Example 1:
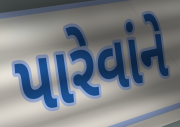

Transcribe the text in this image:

પારેવાંને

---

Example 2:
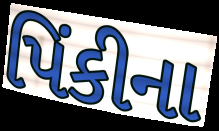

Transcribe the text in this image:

પિંકીના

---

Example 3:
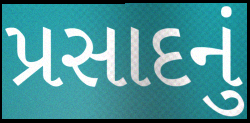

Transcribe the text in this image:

પ્રસાદનું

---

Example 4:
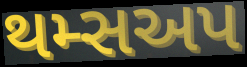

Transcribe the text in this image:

થમ્સઅપ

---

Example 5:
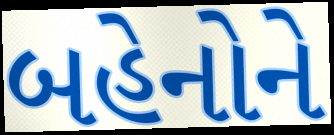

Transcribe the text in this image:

બહેનોને